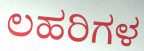
ಲಹರಿಗಳ